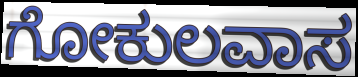
ಗೋಕುಲವಾಸ